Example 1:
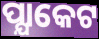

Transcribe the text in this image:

ପ୍ଯାକେଟ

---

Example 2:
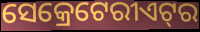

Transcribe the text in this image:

ସେକ୍ରେଟେରୀଏଟ୍‍ର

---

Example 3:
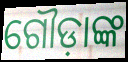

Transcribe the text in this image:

ଗୌଡ଼ାଙ୍କ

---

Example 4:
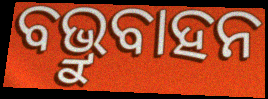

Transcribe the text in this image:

ବଭ୍ରୁବାହନ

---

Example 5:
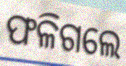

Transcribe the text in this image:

ଫଳିଗଲେ